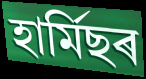
হাৰ্মিছৰ